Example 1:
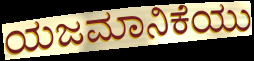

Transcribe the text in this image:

ಯಜಮಾನಿಕೆಯು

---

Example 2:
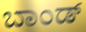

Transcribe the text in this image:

ಬಾಂಡ್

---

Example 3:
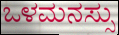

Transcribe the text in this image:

ಒಳಮನಸ್ಸು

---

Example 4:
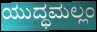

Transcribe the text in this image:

ಯುದ್ಧಮಲ್ಲಂ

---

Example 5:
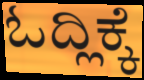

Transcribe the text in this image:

ಓದ್ಲಿಕ್ಕೆ